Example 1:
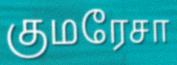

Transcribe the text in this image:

குமரேசா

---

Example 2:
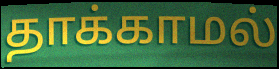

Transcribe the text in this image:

தாக்காமல்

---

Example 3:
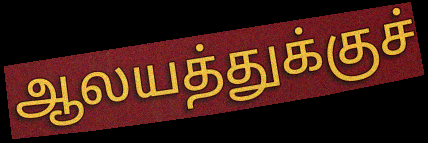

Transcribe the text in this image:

ஆலயத்துக்குச்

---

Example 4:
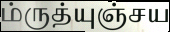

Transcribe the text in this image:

ம்ருத்யுஞ்சய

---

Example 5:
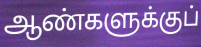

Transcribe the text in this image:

ஆண்களுக்குப்